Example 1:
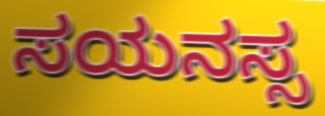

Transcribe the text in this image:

ಸಯನಸ್ಸ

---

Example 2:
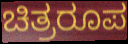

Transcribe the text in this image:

ಚಿತ್ರರೂಪ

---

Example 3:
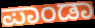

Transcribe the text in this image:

ಪಾಂಡಾ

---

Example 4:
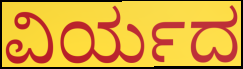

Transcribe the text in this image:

ವಿರ್ಯದ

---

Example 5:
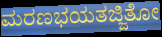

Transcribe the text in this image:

ಮರಣಭಯತಜ್ಜಿತೋ